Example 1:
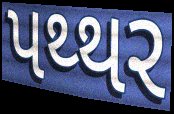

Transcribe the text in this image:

પથ્થર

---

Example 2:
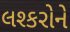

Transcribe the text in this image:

લશ્કરોને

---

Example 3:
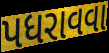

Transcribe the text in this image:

પધરાવવા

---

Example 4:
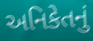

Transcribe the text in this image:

અનિકેતનું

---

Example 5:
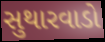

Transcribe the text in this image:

સુથારવાડો